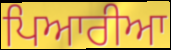
ਪਿਆਰੀਆ